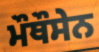
ਮੌਥੌਸੇਨ